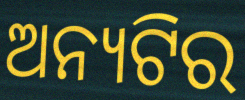
ଅନ୍ୟଟିର